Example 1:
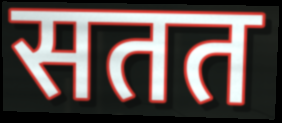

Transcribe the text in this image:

सतत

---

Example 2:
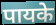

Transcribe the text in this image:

पायके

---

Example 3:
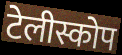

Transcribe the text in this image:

टेलीस्कोप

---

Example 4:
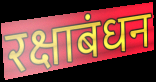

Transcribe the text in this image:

रक्षाबंधन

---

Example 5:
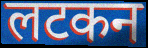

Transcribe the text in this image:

लटकन